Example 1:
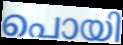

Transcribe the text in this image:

പൊയി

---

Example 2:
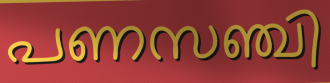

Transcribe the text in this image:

പണസഞ്ചി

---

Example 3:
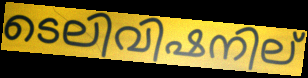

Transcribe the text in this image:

ടെലിവിഷനില്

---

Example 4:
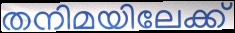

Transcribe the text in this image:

തനിമയിലേക്ക്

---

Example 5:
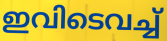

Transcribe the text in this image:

ഇവിടെവച്ച്